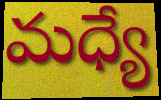
మధ్యే